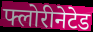
फ्लोरीनेटेड